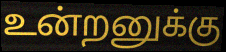
உன்றனுக்கு